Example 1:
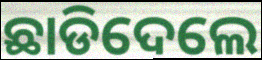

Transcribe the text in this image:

ଛାଡିଦେଲେ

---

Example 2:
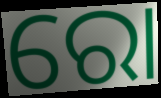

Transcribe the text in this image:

ରୋ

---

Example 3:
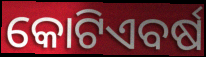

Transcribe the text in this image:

କୋଟିଏବର୍ଷ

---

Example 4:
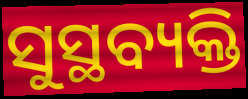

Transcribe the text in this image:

ସୁସ୍ଥବ୍ୟକ୍ତି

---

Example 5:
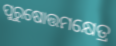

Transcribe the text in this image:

ପୁରୁଷୋତ୍ତମକ୍ଷେତ୍ର